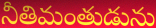
నీతిమంతుడును